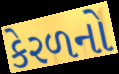
કેરળનો